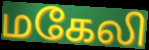
மகேலி